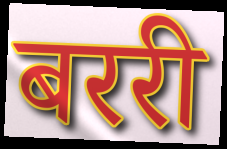
बररी